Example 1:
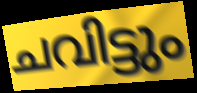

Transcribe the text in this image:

ചവിട്ടും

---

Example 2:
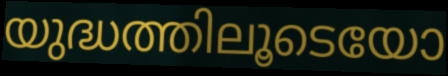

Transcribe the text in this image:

യുദ്ധത്തിലൂടെയോ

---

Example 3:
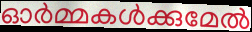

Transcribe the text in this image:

ഓർമ്മകൾക്കുമേൽ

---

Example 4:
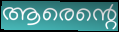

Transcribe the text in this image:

ആരെന്റെ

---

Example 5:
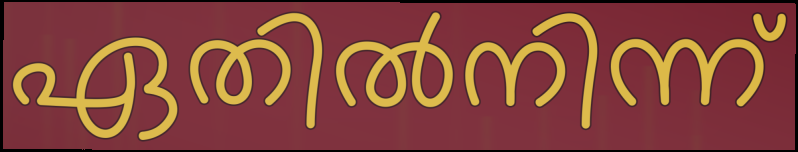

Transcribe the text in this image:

ഏതിൽനിന്ന്